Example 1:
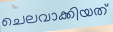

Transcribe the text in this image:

ചെലവാക്കിയത്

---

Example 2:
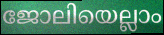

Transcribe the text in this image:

ജോലിയെല്ലാം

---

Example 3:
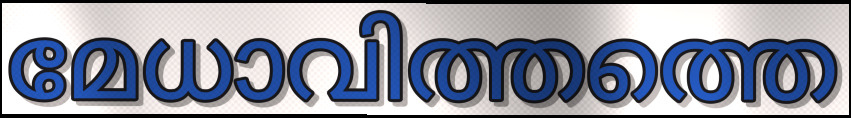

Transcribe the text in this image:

മേധാവിത്തത്തെ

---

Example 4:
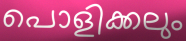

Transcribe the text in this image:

പൊളിക്കലും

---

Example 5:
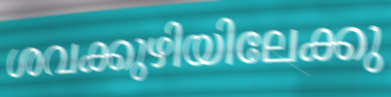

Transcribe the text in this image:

ശവക്കുഴിയിലേക്കു